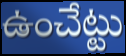
ఉంచేట్టు